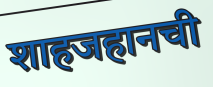
शाहजहानची